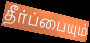
தீர்ப்பையும்